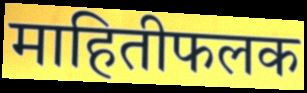
माहितीफलक